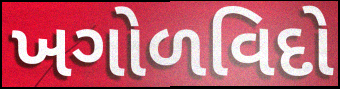
ખગોળવિદો